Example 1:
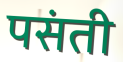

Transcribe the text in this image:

पसंती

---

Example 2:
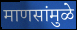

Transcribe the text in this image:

माणसांमुळे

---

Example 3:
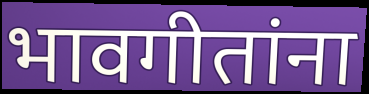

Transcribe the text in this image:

भावगीतांना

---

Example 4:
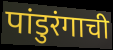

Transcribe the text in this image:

पांडुरंगाची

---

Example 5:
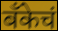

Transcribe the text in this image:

बॅंकेचं